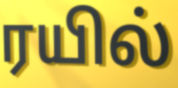
ரயில்